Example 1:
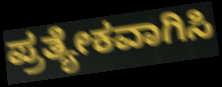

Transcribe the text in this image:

ಪ್ರತ್ಯೇಕವಾಗಿಸಿ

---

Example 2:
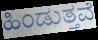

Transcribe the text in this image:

ಹಿಂಡುತ್ತವೆ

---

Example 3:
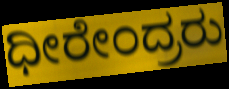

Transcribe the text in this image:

ಧೀರೇಂದ್ರರು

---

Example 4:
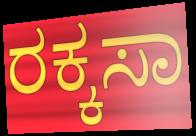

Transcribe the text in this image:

ರಕ್ಕಸಾ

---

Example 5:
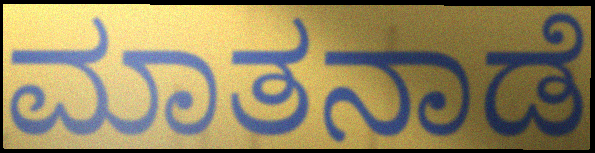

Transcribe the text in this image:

ಮಾತನಾಡೆ